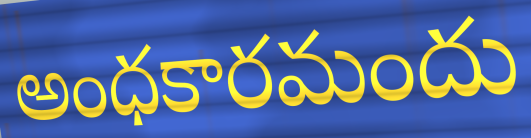
అంధకారమందు